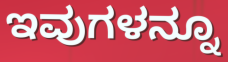
ಇವುಗಳನ್ನೂ